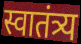
स्वातंत्र्य